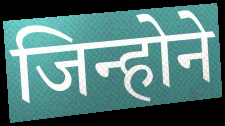
जिन्‍होने